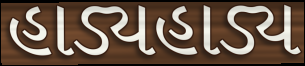
હાડ્યહાડ્ય